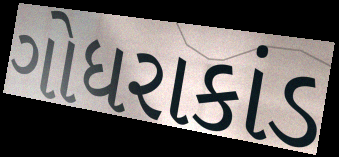
ગોધરાકાંડ